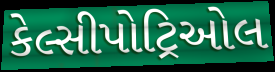
કેલ્સીપોટ્રિઓલ